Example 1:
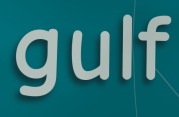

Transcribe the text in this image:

gulf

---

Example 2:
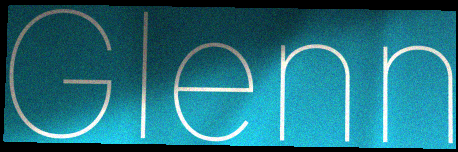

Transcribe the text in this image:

Glenn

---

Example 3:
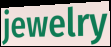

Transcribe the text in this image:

jewelry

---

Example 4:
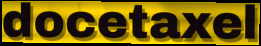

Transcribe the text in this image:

docetaxel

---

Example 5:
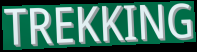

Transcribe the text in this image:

TREKKING